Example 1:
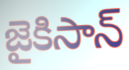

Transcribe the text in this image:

జైకిసాన్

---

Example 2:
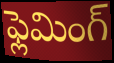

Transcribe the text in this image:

ఫ్లెమింగ్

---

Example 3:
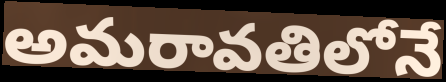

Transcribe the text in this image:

అమరావతిలోనే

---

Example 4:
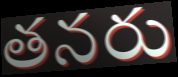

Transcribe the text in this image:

తనరు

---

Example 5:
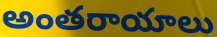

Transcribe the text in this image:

అంతరాయాలు